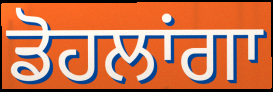
ਡੋਹਲਾਂਗਾ